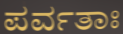
ಪರ್ವತಾಃ